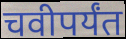
चवीपर्यंत